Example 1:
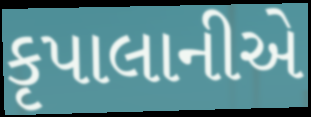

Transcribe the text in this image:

કૃપાલાનીએ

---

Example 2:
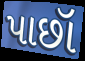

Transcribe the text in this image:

પાછૉ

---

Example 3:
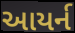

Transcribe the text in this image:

આયર્ન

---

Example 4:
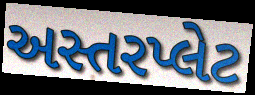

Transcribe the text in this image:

અસ્તરપ્લેટ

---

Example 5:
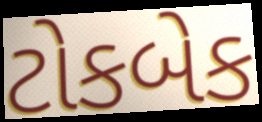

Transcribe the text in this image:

ટોકબેક